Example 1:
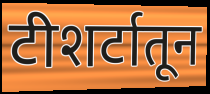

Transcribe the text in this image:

टीशर्टातून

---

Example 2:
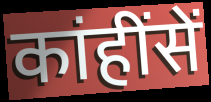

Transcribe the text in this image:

कांहींसें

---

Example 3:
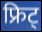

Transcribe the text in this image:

फ्रिट्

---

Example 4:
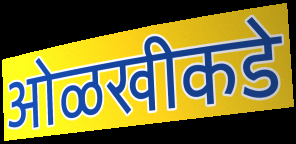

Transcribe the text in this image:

ओळखीकडे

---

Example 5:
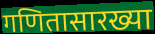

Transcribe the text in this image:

गणितासारख्या